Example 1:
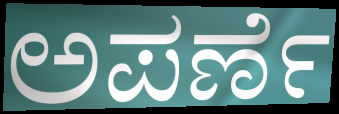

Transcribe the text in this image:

ಅಪರ್ಣೆ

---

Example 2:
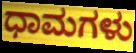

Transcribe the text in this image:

ಧಾಮಗಳು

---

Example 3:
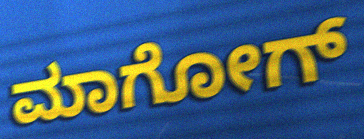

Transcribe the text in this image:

ಮಾಗೋಗ್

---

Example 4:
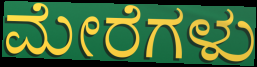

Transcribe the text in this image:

ಮೇರೆಗಳು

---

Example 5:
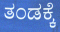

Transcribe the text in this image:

ತಂಡಕ್ಕೆ